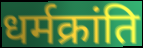
धर्मक्रांति